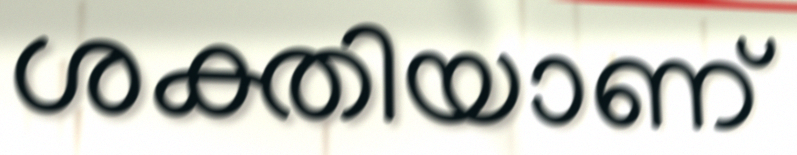
ശക്തിയാണ്